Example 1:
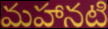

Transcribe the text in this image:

మహానటి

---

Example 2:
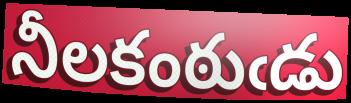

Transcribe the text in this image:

నీలకంఠుఁడు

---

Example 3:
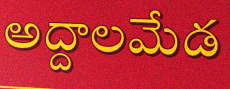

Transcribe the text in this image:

అద్దాలమేడ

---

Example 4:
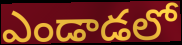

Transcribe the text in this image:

ఎండాడలో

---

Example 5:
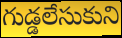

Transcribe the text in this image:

గుడ్డలేసుకుని